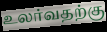
உலர்வதற்கு